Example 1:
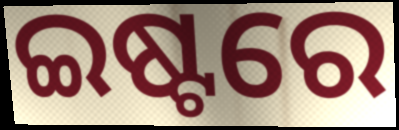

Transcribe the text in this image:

ଇଷ୍ଟରେ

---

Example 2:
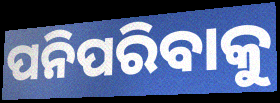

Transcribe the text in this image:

ପନିପରିବାକୁ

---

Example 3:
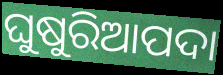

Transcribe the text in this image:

ଘୁଷୁରିଆପଦା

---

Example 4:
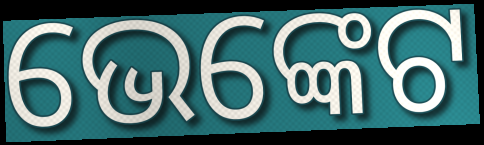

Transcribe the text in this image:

ଭେଙ୍କେଟ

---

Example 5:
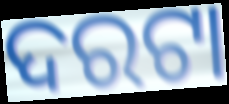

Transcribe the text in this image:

ଦରଟା